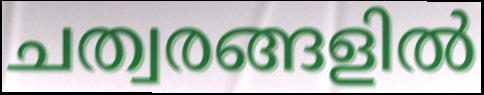
ചത്വരങ്ങളിൽ